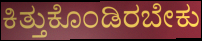
ಕಿತ್ತುಕೊಂಡಿರಬೇಕು